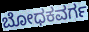
ಬೋಧಕವರ್ಗ